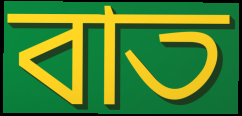
বাত